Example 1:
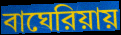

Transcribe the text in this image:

বাঘেরিয়ায়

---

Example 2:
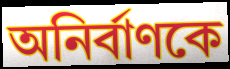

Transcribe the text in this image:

অনির্বাণকে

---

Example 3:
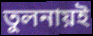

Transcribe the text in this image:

তুলনায়ই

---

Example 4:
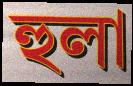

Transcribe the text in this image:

হুলা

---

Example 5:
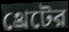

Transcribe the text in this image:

থ্রেটের